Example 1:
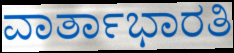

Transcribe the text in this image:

ವಾರ್ತಾಭಾರತಿ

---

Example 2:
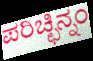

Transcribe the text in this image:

ಪರಿಚ್ಛಿನ್ನಂ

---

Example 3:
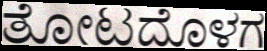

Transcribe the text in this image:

ತೋಟದೊಳಗ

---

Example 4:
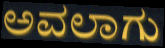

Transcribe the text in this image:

ಅವಲಾಗು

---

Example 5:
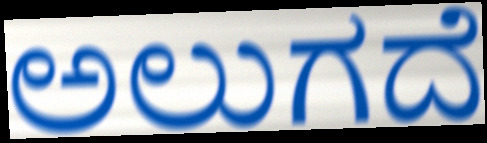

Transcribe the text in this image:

ಅಲುಗದೆ